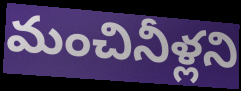
మంచినీళ్లని